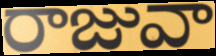
రాజువా